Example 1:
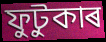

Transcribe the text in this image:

ফুটুকাৰ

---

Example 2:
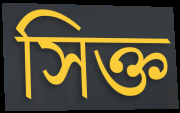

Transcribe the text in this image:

সিক্ত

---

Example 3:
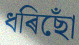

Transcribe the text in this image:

ধৰিছোঁ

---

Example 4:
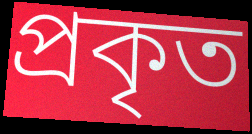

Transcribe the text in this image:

প্ৰকৃত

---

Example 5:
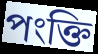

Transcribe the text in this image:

পংক্তি